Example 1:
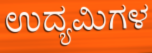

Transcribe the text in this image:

ಉದ್ಯಮಿಗಳ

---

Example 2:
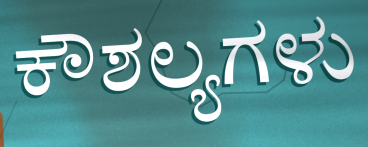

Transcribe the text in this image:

ಕೌಶಲ್ಯಗಳು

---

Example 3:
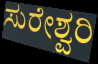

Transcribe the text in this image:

ಸುರೇಶ್ವರಿ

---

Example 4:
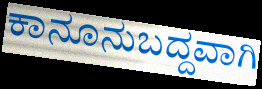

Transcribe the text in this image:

ಕಾನೂನುಬದ್ದವಾಗಿ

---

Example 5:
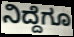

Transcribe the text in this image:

ನಿದ್ದೆಗೂ